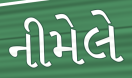
નીમેલે